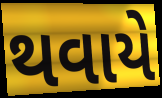
થવાયે